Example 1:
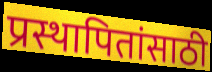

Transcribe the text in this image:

प्रस्थापितांसाठी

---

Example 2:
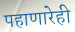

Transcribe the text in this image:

पहाणारेही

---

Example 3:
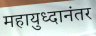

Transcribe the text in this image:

महायुध्दानंतर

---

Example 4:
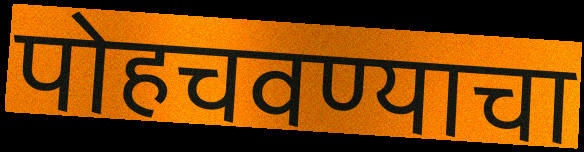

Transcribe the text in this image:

पोहचवण्याचा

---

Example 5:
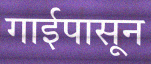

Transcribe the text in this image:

गाईपासून